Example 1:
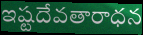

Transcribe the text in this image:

ఇష్టదేవతారాధన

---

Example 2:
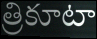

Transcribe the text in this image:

త్రికూటా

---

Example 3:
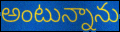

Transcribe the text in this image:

అంటున్నాను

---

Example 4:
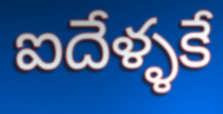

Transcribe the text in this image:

ఐదేళ్ళకే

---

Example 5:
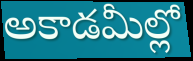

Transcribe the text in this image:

అకాడమీల్లో